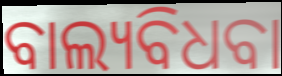
ବାଲ୍ୟବିଧବା